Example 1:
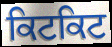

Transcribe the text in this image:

ਕਿਟਕਿਟ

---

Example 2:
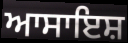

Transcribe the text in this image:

ਆਸਾਇਸ਼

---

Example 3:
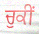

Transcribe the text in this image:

ਚੁਕੀਂ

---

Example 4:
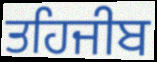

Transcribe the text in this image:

ਤਹਿਜੀਬ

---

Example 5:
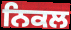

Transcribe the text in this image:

ਨਿਕਲ